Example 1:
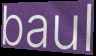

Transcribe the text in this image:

baul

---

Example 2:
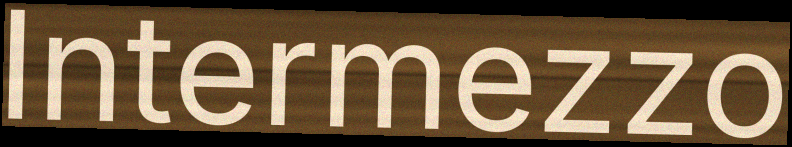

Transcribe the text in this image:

Intermezzo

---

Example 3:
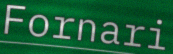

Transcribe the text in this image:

Fornari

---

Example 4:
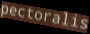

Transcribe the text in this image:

pectoralis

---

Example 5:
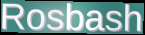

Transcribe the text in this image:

Rosbash